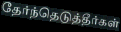
தேர்ந்தெடுத்தீர்கள்